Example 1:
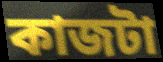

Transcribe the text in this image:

কাজটা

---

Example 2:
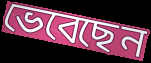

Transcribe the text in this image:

ভেবেছেন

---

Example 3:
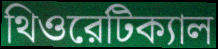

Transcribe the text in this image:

থিওরেটিক্যাল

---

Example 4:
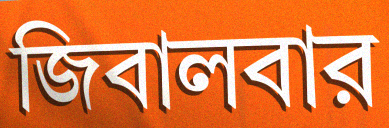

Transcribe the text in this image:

জিবালবার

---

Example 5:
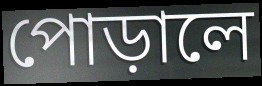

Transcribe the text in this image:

পোড়ালে